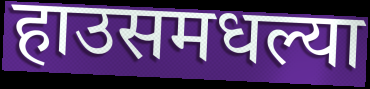
हाउसमधल्या